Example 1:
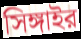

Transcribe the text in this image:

সিঙ্গাইর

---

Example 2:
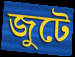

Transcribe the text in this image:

জুটে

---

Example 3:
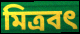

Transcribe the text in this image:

মিত্রবৎ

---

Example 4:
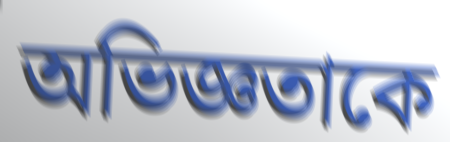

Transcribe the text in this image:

অভিজ্ঞতাকে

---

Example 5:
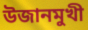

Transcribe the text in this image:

উজানমুখী